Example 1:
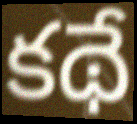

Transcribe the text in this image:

కథే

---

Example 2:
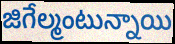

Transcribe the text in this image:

జిగేల్మంటున్నాయి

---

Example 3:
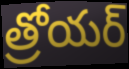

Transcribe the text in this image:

త్రోయర్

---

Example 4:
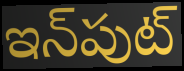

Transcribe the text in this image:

ఇన్‌పుట్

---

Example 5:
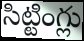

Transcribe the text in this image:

సిట్టింగ్లు